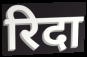
रिदा